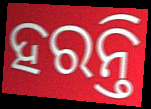
ହରନ୍ତି